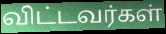
விட்டவர்கள்